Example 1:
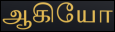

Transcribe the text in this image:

ஆகியோ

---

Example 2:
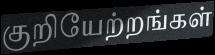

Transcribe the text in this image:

குறியேற்றங்கள்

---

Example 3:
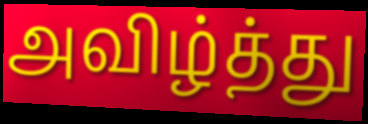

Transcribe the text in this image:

அவிழ்த்து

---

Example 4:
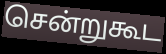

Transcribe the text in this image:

சென்றுகூட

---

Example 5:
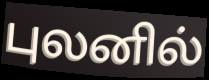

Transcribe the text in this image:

புலனில்